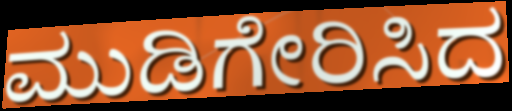
ಮುಡಿಗೇರಿಸಿದ